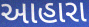
આહારા